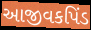
આજીવકપિંડ